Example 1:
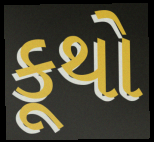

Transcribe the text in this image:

કૂથો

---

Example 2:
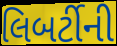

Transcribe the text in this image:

લિબર્ટીની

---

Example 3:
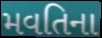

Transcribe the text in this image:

મવતિના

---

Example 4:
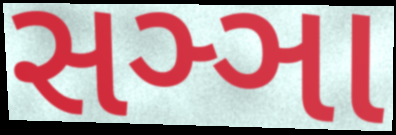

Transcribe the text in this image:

સઞ્ઞા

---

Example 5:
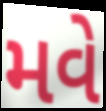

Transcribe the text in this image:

મવે